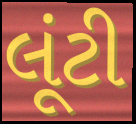
લૂંટી